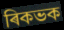
ৰিকভক